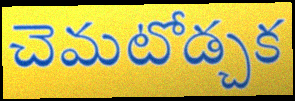
చెమటోడ్చక